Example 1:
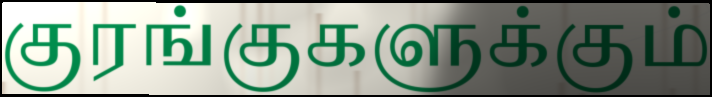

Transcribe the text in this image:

குரங்குகளுக்கும்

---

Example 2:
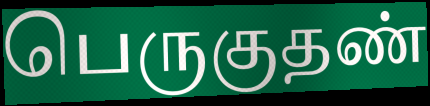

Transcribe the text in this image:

பெருகுதண்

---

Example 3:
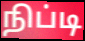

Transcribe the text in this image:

நிப்டி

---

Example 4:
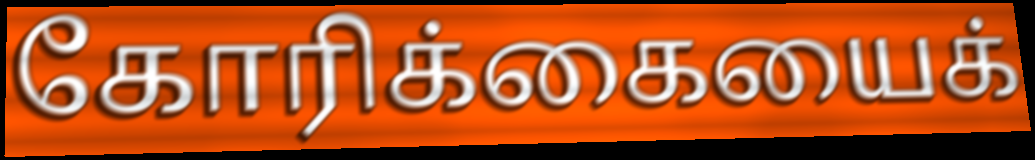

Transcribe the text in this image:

கோரிக்கையைக்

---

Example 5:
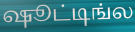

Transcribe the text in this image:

ஷூட்டிங்ல